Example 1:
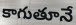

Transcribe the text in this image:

కాగుతూనే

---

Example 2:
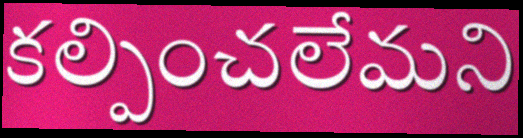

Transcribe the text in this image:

కల్పించలేమని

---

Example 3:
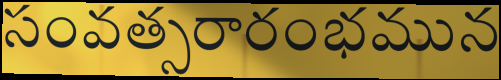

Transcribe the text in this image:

సంవత్సరారంభమున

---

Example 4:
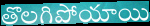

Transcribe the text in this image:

తొలగిపోయాయి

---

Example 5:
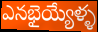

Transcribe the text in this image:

ఎనభైయ్యేళ్ళ